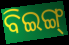
ବିଇଙ୍ଗ୍